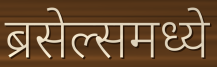
ब्रसेल्समध्ये